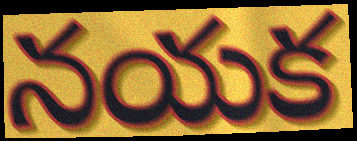
నయక